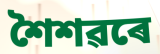
শৈশৱৰে